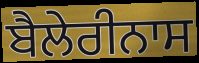
ਬੈਲੇਰੀਨਾਸ